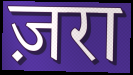
ज़रा